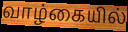
வாழ்கையில்